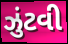
ઝુંટવી